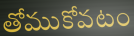
తోముకోవటం